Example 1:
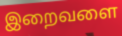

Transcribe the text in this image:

இறைவளை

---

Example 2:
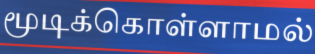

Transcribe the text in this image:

மூடிக்கொள்ளாமல்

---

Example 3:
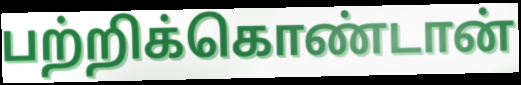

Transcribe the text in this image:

பற்றிக்கொண்டான்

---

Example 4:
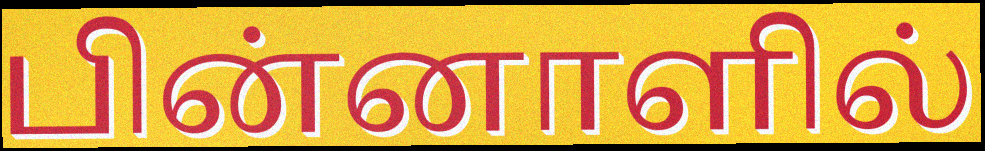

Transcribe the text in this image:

பின்னாளில்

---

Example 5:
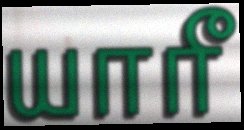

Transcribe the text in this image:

யாரீ